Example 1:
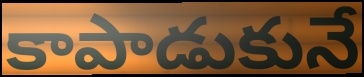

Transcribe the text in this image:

కాపాడుకునే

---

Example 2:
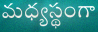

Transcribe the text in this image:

మధ్యస్థంగా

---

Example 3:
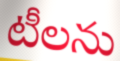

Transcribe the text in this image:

టీలను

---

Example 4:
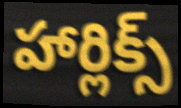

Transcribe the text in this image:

హార్లిక్స్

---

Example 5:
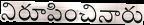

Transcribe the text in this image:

నిరూపించినారు